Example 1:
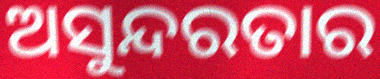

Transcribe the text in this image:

ଅସୁନ୍ଦରତାର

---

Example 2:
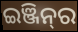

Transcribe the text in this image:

ଇଞ୍ଜିନ୍‌ର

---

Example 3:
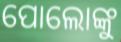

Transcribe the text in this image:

ପୋଲୋଙ୍କୁ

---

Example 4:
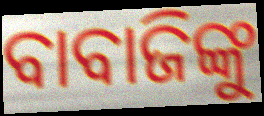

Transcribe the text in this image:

ବାବାଜିଙ୍କୁ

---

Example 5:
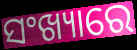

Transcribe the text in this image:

ସଂଖ୍ଯାରେ